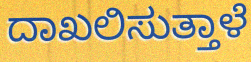
ದಾಖಲಿಸುತ್ತಾಳೆ